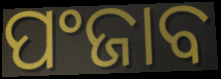
ପଂଜାବ